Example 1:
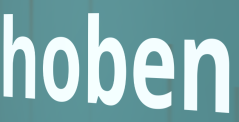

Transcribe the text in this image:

hoben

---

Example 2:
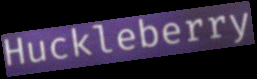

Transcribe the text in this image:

Huckleberry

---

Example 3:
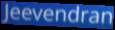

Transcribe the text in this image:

Jeevendran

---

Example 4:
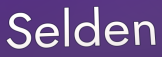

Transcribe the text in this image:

Selden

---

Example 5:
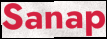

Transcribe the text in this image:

Sanap